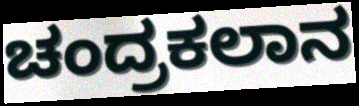
ಚಂದ್ರಕಲಾನ